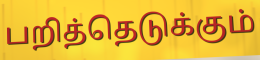
பறித்தெடுக்கும்